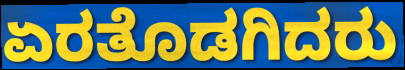
ಏರತೊಡಗಿದರು